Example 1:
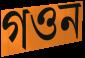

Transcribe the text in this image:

গওন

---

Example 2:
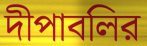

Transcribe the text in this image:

দীপাবলির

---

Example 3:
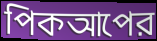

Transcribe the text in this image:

পিকআপের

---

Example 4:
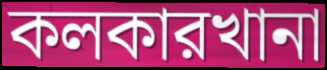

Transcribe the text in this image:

কলকারখানা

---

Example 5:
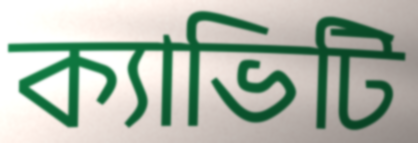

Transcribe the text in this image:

ক্যাভিটি